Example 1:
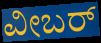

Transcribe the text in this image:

ವೀಬರ್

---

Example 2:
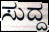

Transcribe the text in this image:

ಸುದ್ದ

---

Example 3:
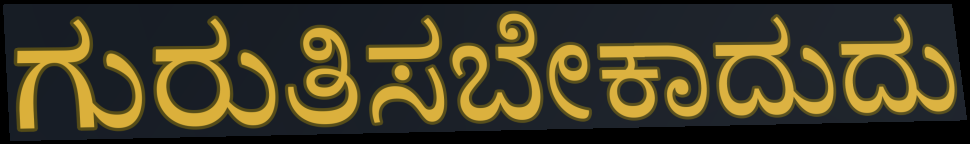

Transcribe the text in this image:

ಗುರುತಿಸಬೇಕಾದುದು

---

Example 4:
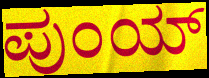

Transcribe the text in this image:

ಪುಂಯ್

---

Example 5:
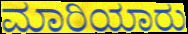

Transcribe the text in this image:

ಮಾರಿಯಾರು